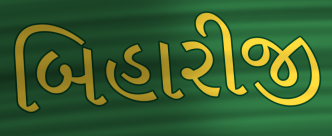
બિહારીજી